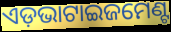
ଏଡ଼ଭାଟାଇଜମେଣ୍ଟ